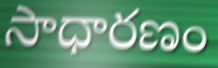
సాధారణం